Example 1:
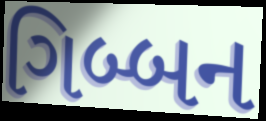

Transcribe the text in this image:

ગિબ્બન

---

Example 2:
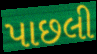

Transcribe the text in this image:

પાછલી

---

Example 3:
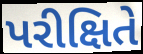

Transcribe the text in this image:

પરીક્ષિતે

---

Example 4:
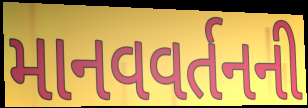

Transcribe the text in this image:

માનવવર્તનની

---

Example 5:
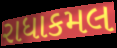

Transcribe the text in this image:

રાધાકમલ